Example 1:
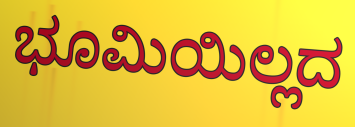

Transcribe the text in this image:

ಭೂಮಿಯಿಲ್ಲದ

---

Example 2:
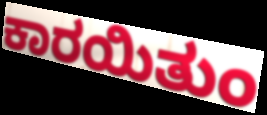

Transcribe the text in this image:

ಕಾರಯಿತುಂ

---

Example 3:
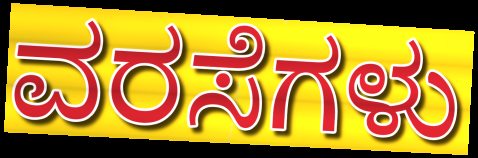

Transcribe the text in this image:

ವರಸೆಗಳು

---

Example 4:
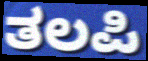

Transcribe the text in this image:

ತಲಪಿ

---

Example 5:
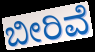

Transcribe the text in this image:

ಬೀರಿವೆ